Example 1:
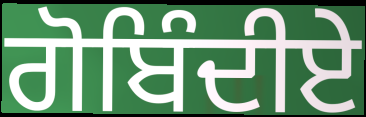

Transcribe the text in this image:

ਗੋਬਿੰਦੀਏ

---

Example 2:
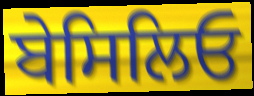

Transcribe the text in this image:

ਬੇਸਿਲਿਓ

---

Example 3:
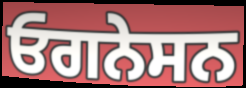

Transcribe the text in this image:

ਓਗਨੇਸਨ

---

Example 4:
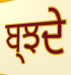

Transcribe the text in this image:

ਬ੍ਝਦੇ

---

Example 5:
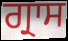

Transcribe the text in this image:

ਗ੍ਰਾਸ